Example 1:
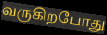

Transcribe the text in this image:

வருகிறபோது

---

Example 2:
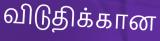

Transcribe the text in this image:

விடுதிக்கான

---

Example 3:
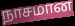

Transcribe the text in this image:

நாசமான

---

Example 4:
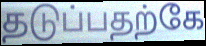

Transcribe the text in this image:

தடுப்பதற்கே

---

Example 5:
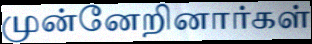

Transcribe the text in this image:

முன்னேறினார்கள்